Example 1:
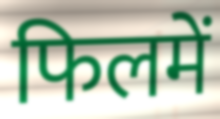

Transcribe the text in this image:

फिलमें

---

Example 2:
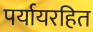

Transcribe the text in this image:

पर्यायरहित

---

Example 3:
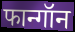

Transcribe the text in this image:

फान्गॉन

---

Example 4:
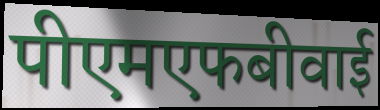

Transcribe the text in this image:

पीएमएफबीवाई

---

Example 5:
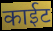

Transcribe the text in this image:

काईट